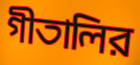
গীতালির